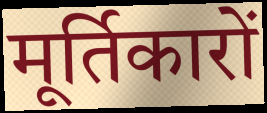
मूर्तिकारों